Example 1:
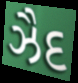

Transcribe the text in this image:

ઝૈદ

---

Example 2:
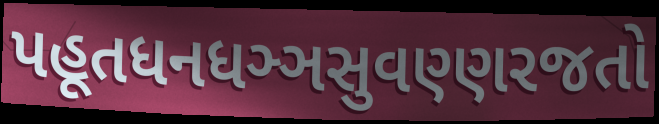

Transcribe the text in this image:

પહૂતધનધઞ્ઞસુવણ્ણરજતો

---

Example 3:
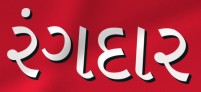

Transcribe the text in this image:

રંગદાર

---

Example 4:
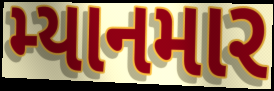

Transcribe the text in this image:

મ્યાનમાર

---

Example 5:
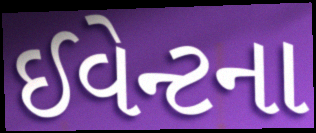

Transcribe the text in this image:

ઈવેન્ટના